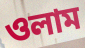
ওলাম